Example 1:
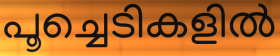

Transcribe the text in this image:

പൂച്ചെടികളിൽ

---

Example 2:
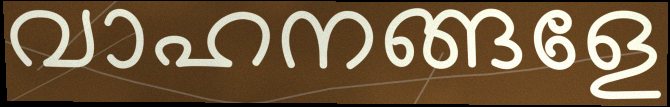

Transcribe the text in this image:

വാഹനങ്ങളേ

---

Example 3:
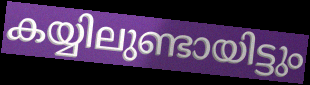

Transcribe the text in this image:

കയ്യിലുണ്ടായിട്ടും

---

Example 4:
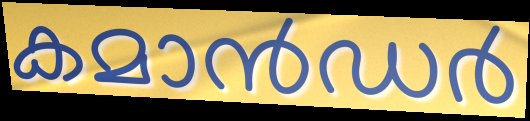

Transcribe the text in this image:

കമാൻഡർ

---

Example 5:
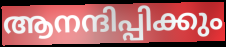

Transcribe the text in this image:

ആനന്ദിപ്പിക്കും